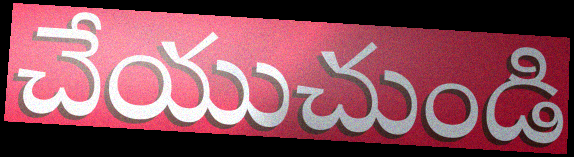
చేయుచుండి